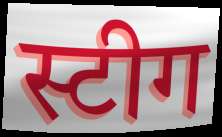
स्टीग